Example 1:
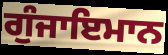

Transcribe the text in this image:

ਗੁੰਜਾਇਮਾਨ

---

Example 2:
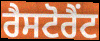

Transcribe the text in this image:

ਰੈਸਟੋਰੈਂਟ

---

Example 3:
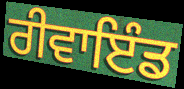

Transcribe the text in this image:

ਰੀਵਾਇੰਡ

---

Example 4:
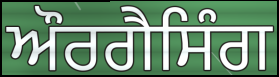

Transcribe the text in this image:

ਔਰਗੈਸਿੰਗ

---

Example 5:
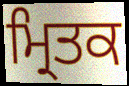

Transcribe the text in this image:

ਮ੍ਰਿਤਕ